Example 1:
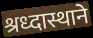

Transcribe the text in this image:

श्रध्दास्थाने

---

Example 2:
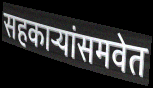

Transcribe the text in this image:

सहकाऱ्यांसमवेत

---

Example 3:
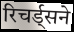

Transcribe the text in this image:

रिचर्ड्सने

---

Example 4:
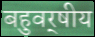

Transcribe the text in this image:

बहुवर्षीय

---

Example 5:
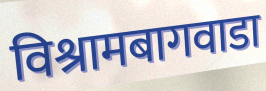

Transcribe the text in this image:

विश्रामबागवाडा